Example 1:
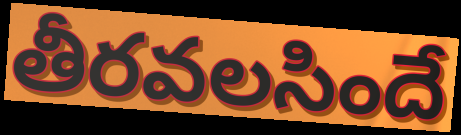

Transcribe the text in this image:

తీరవలసిందే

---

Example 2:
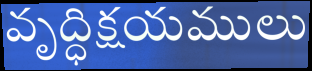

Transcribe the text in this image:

వృద్ధిక్షయములు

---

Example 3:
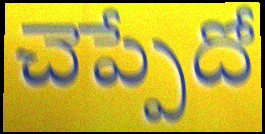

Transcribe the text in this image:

చెప్పేదో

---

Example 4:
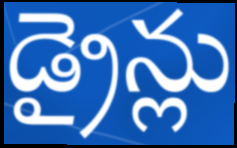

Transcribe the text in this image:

డ్రైన్లు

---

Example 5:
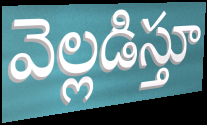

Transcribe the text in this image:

వెల్లడిస్తూ